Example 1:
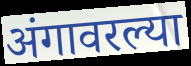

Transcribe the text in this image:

अंगावरल्या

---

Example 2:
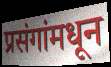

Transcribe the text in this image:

प्रसंगांमधून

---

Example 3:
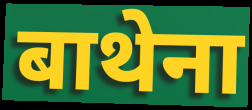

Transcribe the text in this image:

बाथेना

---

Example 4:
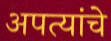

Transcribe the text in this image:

अपत्यांचे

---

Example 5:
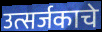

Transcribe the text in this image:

उत्सर्जकाचे